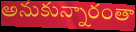
అనుకున్నారంతా